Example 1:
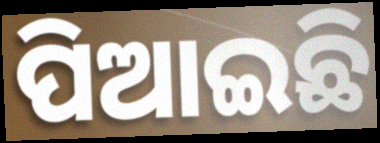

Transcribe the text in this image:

ପିଆଇଛି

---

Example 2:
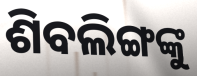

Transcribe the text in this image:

ଶିବଲିଙ୍ଗଙ୍କୁ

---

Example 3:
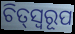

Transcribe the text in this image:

ଚିତ୍‌ସ୍ୱରୂପ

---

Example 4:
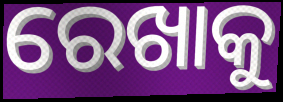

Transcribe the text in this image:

ରେଖାକୁ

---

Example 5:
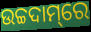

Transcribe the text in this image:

ଉଚ୍ଚଦାମ୍‌ରେ